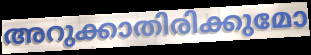
അറുക്കാതിരിക്കുമോ